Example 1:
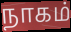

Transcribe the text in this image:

நாகம்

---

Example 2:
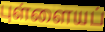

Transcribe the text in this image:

புள்ளையப்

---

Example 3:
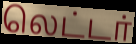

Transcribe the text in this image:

லெட்டர்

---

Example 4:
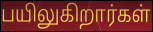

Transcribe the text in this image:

பயிலுகிறார்கள்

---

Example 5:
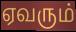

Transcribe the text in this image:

ஏவரும்